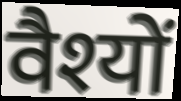
वैश्‍यों